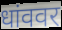
धांववर